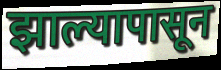
झाल्यापासून